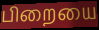
பிறையை